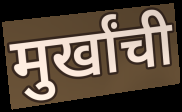
मुर्खांची